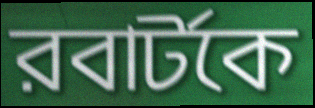
রবার্টকে